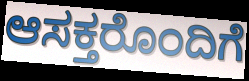
ಆಸಕ್ತರೊಂದಿಗೆ